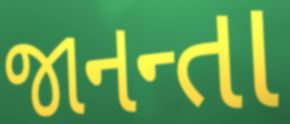
જાનન્તા